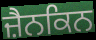
ਜ਼ੈਨਕਿਨ